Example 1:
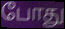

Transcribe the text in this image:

போது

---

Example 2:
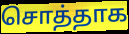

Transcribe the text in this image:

சொத்தாக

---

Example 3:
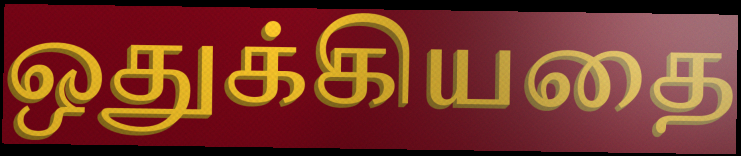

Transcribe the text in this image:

ஒதுக்கியதை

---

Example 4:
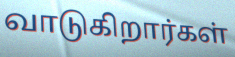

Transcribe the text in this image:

வாடுகிறார்கள்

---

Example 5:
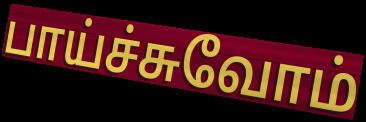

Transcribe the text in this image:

பாய்ச்சுவோம்